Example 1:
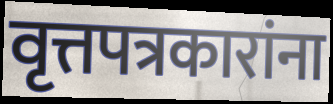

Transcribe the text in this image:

वृत्तपत्रकारांना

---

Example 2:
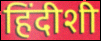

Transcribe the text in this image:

हिंदीशी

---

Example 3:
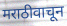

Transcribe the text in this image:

मराठीवाचून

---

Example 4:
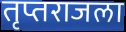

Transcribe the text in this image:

तृप्तराजला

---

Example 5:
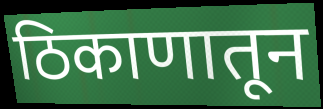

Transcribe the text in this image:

ठिकाणातून